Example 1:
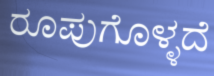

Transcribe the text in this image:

ರೂಪುಗೊಳ್ಳದೆ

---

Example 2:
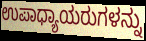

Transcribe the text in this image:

ಉಪಾಧ್ಯಾಯರುಗಳನ್ನು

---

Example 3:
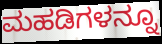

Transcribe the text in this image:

ಮಹಡಿಗಳನ್ನೂ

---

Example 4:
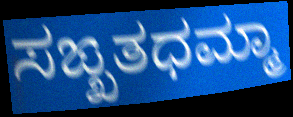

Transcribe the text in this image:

ಸಙ್ಖತಧಮ್ಮಾ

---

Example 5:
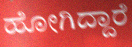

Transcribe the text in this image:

ಹೋಗಿದ್ದಾರೆ